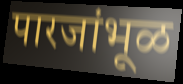
पारजांभूळ